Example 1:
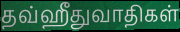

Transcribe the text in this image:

தவ்ஹீதுவாதிகள்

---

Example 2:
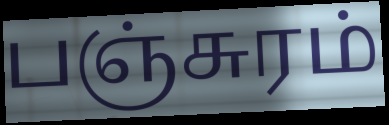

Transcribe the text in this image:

பஞ்சுரம்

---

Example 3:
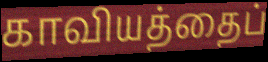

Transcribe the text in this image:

காவியத்தைப்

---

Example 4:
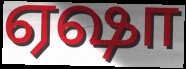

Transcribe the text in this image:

ஏஷா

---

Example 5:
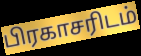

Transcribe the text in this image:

பிரகாசரிடம்